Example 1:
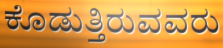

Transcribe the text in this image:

ಕೊಡುತ್ತಿರುವವರು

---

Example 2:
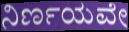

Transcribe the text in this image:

ನಿರ್ಣಯವೇ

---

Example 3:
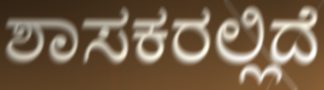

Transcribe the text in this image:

ಶಾಸಕರಲ್ಲಿದೆ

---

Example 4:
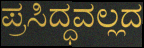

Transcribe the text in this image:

ಪ್ರಸಿದ್ಧವಲ್ಲದ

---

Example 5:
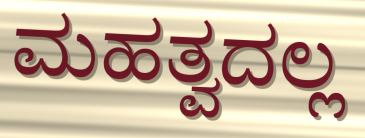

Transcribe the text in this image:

ಮಹತ್ವದಲ್ಲ